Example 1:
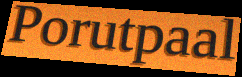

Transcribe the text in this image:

Porutpaal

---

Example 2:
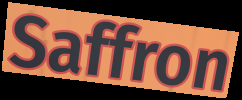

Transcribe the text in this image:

Saffron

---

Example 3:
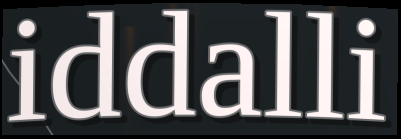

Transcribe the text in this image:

iddalli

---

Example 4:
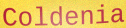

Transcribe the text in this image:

Coldenia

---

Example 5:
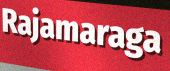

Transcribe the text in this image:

Rajamaraga